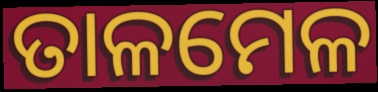
ତାଳମେଳ